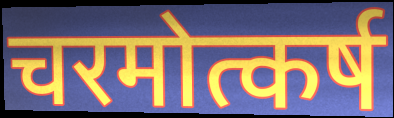
चरमोत्कर्ष